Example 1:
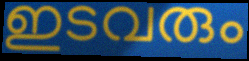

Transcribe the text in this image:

ഇടവരും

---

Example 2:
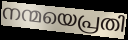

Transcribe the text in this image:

നന്മയെപ്രതി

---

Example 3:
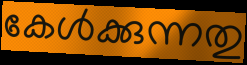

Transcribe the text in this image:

കേൾക്കുന്നതു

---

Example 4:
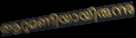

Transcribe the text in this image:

ആറുമണിയായിരുന്നു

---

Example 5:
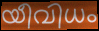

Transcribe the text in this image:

യീവിധം